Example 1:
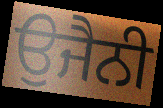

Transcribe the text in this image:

ਉਜੈਨੀ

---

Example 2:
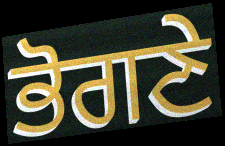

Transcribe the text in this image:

ਭੋਗਣੇ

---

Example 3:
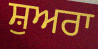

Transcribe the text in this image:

ਸ਼ੁਅਰਾ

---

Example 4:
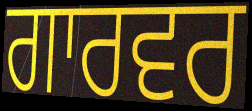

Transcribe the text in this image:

ਗਾਰਵਰ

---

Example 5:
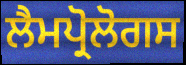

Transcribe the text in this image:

ਲੈਮਪ੍ਰੋਲੋਗਸ